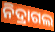
ନିଦ୍ରାଗଲ